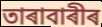
তাৰাবাৰীৰ